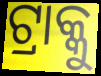
ଟ୍ରାକ୍କୁ